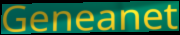
Geneanet